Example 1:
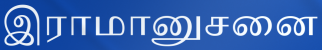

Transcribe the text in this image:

இராமானுசனை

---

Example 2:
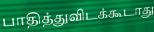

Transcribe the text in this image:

பாதித்துவிடக்கூடாது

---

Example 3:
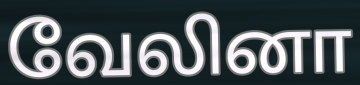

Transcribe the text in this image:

வேலினா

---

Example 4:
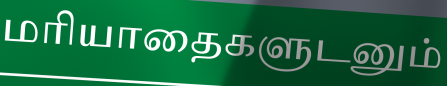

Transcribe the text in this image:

மரியாதைகளுடனும்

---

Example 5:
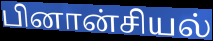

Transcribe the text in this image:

பினான்சியல்